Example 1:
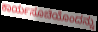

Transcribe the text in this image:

ಕಾರ್ಯಸೂಚಿಯೊಂದನ್ನು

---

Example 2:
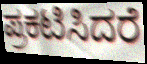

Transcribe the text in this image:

ಪ್ರಕಟಿಸಿದರೆ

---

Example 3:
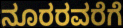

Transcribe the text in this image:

ನೂರರವರೆಗೆ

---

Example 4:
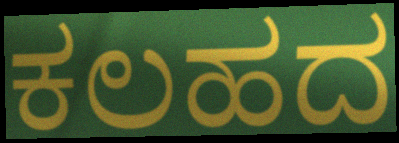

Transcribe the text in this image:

ಕಲಹದ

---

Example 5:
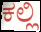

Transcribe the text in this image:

ಕಲ್ಲಿ